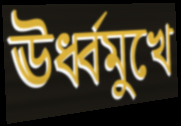
ঊর্ধ্বমুখে